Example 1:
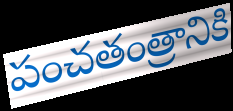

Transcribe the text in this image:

పంచతంత్రానికి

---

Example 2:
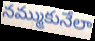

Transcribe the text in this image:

నమ్ముకునేలా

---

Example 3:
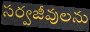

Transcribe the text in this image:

సర్వజీవులను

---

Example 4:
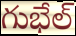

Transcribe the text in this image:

గుభేల్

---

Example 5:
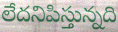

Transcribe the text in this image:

లేదనిపిస్తున్నది